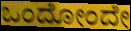
ಒಂದೋಂದೇ